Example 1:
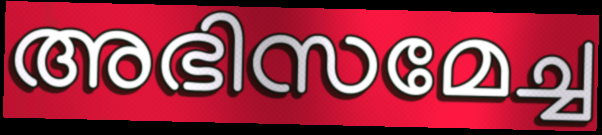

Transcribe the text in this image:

അഭിസമേച്ച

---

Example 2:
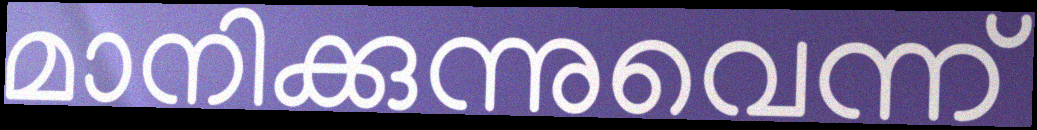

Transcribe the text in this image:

മാനിക്കുന്നുവെന്ന്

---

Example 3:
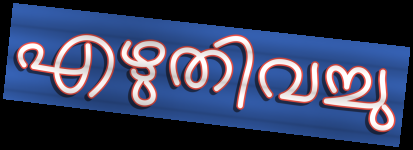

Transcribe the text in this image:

എഴുതിവച്ചു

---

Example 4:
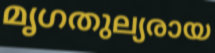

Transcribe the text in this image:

മൃഗതുല്യരായ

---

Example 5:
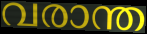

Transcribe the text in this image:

വരാന്ത